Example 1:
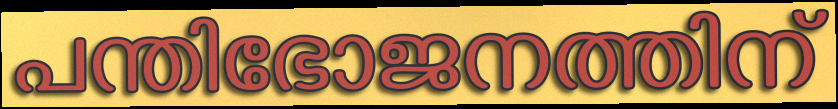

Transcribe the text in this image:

പന്തിഭോജനത്തിന്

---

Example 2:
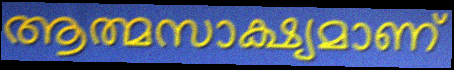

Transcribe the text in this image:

ആത്മസാക്ഷ്യമാണ്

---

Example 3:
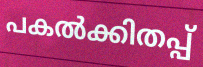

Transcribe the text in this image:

പകൽക്കിതപ്പ്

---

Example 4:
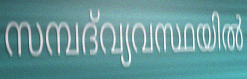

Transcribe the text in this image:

സമ്പദ്‌വ്യവസ്ഥയിൽ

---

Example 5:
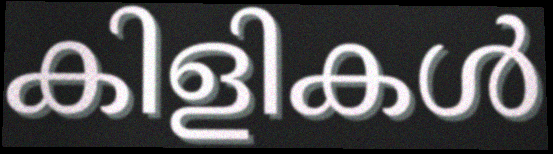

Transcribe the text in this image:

കിളികൾ